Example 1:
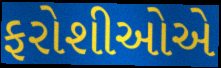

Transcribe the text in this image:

ફરોશીઓએ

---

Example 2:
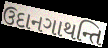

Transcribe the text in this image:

ઉદાનગાથન્તિ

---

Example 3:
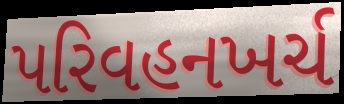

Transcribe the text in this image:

પરિવહનખર્ચ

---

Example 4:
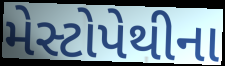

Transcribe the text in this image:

મેસ્ટોપેથીના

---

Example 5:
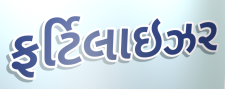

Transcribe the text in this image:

ફર્ટિલાઇઝર